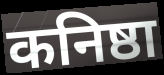
कनिष्ठा